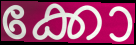
ക്കോ